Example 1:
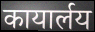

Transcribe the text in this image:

कायार्लय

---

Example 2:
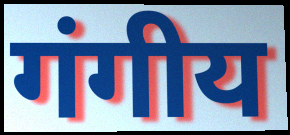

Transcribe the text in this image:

गंगीय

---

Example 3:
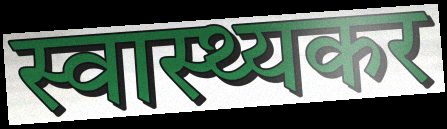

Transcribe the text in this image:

स्वास्थ्यकर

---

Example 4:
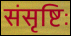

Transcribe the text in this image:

संसृष्टिः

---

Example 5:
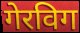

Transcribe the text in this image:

गेरविग